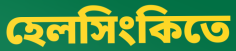
হেলসিংকিতে